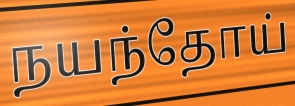
நயந்தோய்